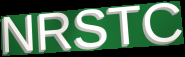
NRSTC